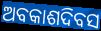
ଅବକାଶଦିବସ